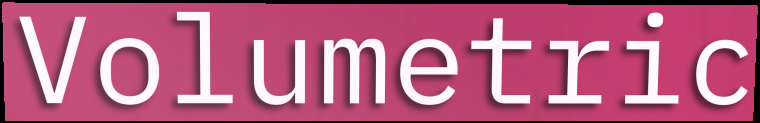
Volumetric